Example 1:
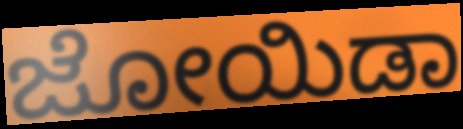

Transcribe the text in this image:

ಜೋಯಿಡಾ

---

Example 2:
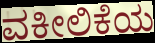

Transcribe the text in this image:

ವಕೀಲಿಕೆಯ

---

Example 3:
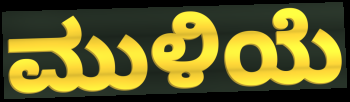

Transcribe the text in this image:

ಮುಳಿಯೆ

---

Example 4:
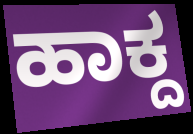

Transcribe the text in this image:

ಹಾಕ್ದ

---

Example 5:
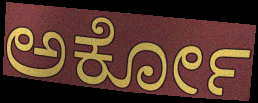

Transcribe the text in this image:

ಅರ್ಕೋ